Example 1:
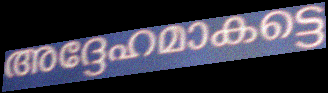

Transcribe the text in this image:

അദ്ദേഹമാകട്ടെ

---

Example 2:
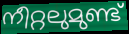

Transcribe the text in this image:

നീറ്റലുമുണ്ട്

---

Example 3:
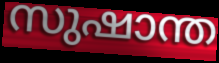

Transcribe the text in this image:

സുഷാന്ത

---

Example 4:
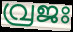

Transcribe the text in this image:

വ്രജഃ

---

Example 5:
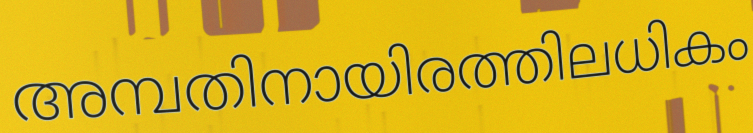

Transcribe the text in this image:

അമ്പതിനായിരത്തിലധികം